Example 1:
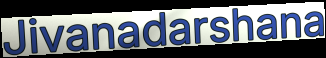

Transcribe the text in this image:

Jivanadarshana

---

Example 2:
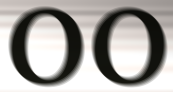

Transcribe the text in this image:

oo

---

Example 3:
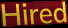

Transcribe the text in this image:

Hired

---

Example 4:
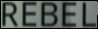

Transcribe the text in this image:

REBEL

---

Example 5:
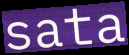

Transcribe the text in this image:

sata